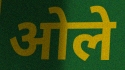
ओले